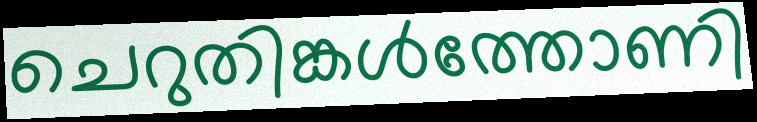
ചെറുതിങ്കൾത്തോണി